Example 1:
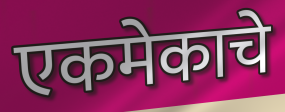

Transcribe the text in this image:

एकमेकाचे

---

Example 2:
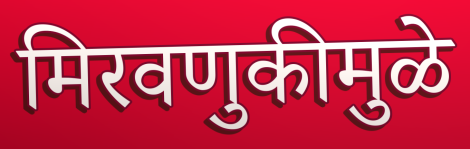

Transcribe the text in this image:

मिरवणुकीमुळे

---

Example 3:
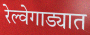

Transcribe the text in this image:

रेल्वेगाड्यात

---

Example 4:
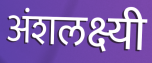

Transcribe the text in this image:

अंशलक्ष्यी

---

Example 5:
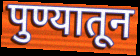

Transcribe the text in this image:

पुण्यातून